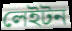
লেইটন